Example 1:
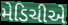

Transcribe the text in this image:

મેડિચીએ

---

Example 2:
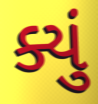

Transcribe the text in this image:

ક્યું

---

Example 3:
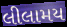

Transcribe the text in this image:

લીલામય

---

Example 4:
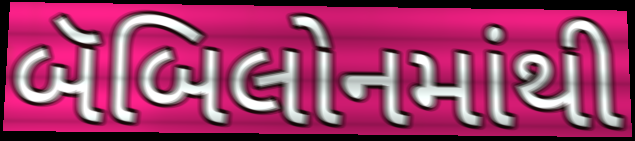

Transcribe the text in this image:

બૅબિલોનમાંથી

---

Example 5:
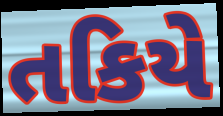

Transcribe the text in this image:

તકિયે